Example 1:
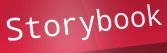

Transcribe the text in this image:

Storybook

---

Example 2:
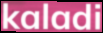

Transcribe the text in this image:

kaladi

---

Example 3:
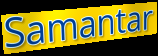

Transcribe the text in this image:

Samantar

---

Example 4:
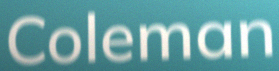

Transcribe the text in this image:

Coleman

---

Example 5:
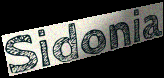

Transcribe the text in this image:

Sidonia